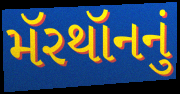
મૅરથૉનનું